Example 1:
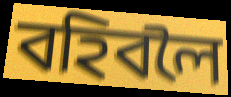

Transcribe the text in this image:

বহিবলৈ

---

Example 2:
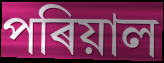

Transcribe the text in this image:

পৰিয়াল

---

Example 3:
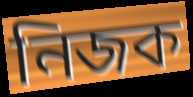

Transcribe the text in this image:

নিজক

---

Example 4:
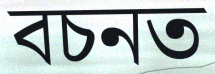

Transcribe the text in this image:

বচনত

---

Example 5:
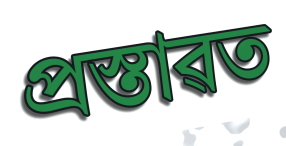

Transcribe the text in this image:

প্ৰস্তাৱত